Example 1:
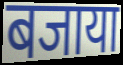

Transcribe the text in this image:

बजाया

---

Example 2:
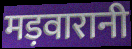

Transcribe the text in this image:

मड़वारानी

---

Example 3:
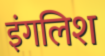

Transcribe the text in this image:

इंगलिश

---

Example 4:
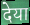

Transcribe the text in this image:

देया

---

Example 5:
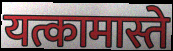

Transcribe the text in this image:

यत्कामास्ते